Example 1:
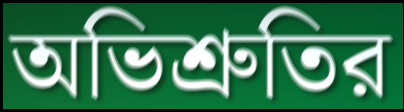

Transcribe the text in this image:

অভিশ্রুতির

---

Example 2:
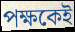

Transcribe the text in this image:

পক্ষকেই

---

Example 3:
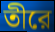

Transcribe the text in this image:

তীরে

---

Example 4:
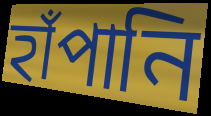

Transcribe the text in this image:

হাঁপানি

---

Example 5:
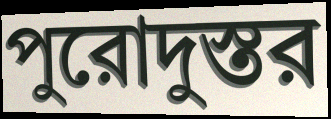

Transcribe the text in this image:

পুরোদুস্তর